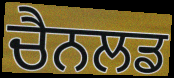
ਚੈਨਲਡ